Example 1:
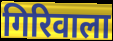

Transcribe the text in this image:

गिरिवाला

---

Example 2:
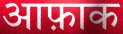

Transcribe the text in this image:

आफ़ाक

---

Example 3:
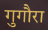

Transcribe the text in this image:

गुगौरा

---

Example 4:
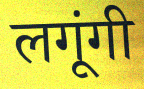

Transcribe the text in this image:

लगूंगी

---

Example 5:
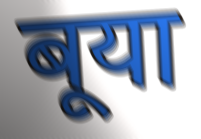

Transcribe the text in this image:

बूया